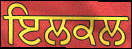
ਇਲਕਲ